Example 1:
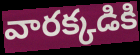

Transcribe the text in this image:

వారక్కడికి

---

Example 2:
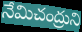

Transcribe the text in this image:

నేమిచంద్రుని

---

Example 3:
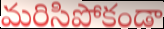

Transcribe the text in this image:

మరిసిపోకండా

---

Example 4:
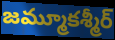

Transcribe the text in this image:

జమ్మూకశ్మీర్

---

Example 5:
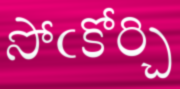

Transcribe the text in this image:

సోఁకోర్చి